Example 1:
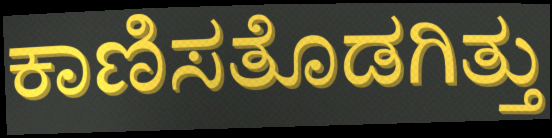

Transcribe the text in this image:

ಕಾಣಿಸತೊಡಗಿತ್ತು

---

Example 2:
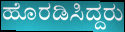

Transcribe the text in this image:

ಹೊರಡಿಸಿದ್ದರು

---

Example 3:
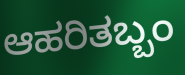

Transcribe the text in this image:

ಆಹರಿತಬ್ಬಂ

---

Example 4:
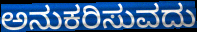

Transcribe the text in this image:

ಅನುಕರಿಸುವದು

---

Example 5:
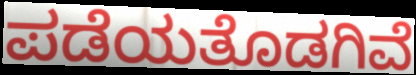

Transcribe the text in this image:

ಪಡೆಯತೊಡಗಿವೆ